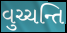
વુચ્ચન્તિ